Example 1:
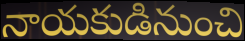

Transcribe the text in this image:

నాయకుడినుంచి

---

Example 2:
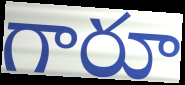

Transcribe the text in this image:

గారూ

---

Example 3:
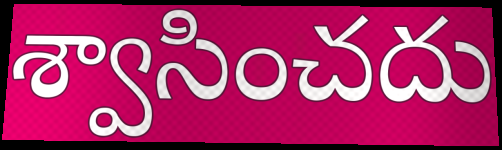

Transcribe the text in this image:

శ్వాసించదు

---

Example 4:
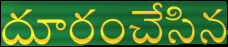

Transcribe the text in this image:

దూరంచేసిన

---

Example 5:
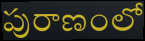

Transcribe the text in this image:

పురాణంలో